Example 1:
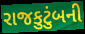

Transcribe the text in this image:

રાજકુટુંબની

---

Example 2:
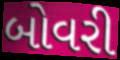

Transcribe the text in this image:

બોવરી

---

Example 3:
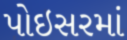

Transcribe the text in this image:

પોઇસરમાં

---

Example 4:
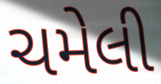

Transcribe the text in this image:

ચમેલી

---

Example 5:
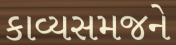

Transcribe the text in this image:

કાવ્યસમજને